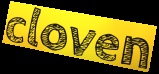
cloven